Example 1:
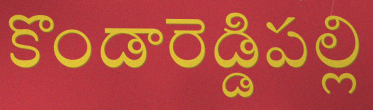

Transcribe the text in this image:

కొండారెడ్డిపల్లి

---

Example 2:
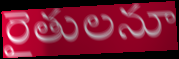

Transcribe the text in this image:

రైతులనూ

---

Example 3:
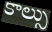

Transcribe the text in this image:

కాల్సు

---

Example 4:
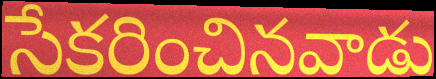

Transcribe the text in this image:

సేకరించినవాడు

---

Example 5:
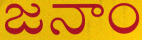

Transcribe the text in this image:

జనాం